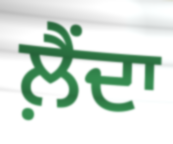
ਲ਼ੈਂਦਾ